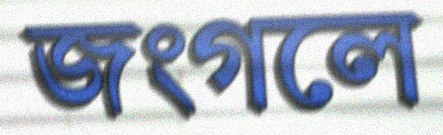
জংগলে